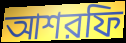
আশরফি